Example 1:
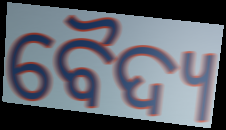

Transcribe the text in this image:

ବୈଦ୍ୟ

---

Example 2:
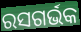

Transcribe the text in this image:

ରସଗର୍ଭକ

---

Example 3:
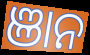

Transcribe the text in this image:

ଞାନ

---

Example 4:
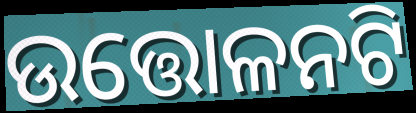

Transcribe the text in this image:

ଉତ୍ତୋଳନଟି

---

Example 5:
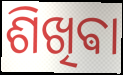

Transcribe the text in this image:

ଶିଖିଵା